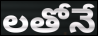
లతోనే